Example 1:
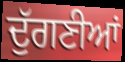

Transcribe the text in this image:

ਦੁੱਗਣੀਆਂ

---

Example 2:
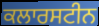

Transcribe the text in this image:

ਕਲਾਰਸਟੀਨ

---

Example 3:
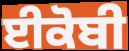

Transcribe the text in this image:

ਈਕੋਬੀ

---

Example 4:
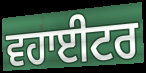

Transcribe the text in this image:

ਵਹਾਈਟਰ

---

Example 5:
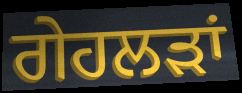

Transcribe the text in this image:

ਗੇਹਲੜਾਂ